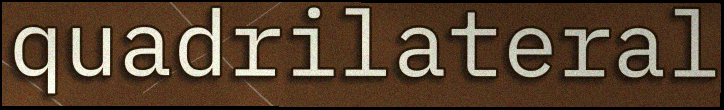
quadrilateral